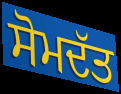
ਸੋਮਦੱਤ